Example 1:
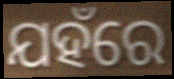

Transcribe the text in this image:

ଯହଁରେ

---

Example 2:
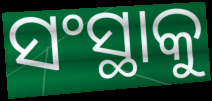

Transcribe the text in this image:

ସଂସ୍ଥାକୁ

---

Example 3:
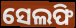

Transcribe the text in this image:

ସେଲଫି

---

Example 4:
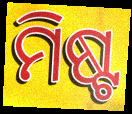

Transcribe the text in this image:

ମିଷ୍ଟ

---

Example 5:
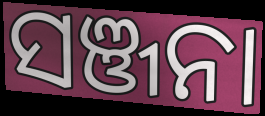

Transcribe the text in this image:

ସଞ୍ଜନା